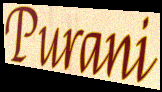
Purani